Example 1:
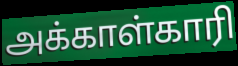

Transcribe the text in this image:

அக்காள்காரி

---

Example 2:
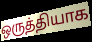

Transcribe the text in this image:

ஒருத்தியாக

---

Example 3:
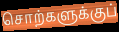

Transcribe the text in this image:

சொற்களுக்குப்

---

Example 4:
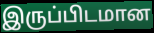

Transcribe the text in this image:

இருப்பிடமான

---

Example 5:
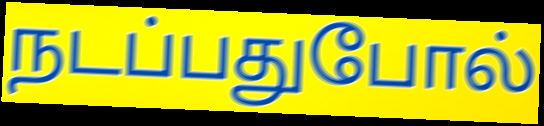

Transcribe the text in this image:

நடப்பதுபோல்